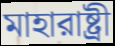
মাহারাষ্ট্রী